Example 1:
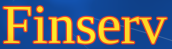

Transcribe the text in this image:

Finserv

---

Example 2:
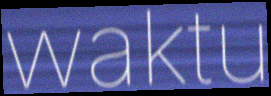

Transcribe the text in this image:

waktu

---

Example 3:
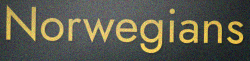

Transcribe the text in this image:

Norwegians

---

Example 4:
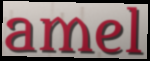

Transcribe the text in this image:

amel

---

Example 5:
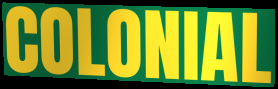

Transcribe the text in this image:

COLONIAL